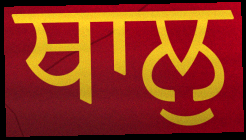
ਥਾਲੁ